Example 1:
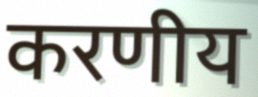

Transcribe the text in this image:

करणीय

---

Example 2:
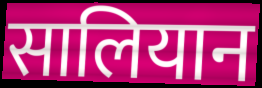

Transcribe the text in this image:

सालियान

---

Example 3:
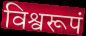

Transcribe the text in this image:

विश्वरूपं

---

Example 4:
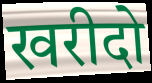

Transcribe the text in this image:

खरीदो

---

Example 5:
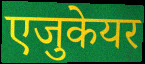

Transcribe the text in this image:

एजुकेयर